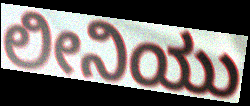
ಲೀನಿಯು